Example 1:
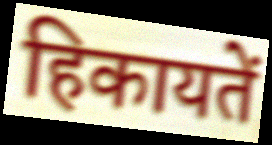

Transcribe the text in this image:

हिकायतें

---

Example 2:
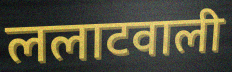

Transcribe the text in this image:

ललाटवाली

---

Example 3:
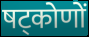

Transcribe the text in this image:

षट्कोणों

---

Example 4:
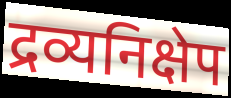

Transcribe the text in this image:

द्रव्यनिक्षेप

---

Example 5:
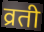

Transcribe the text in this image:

व्रती